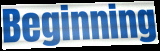
Beginning